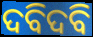
ଦବିଦବି